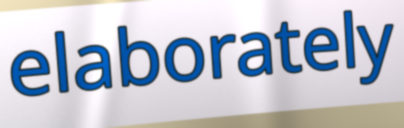
elaborately